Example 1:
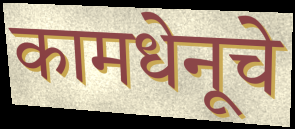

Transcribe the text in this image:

कामधेनूचे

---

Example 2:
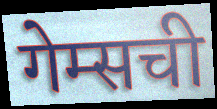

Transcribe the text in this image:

गेम्सची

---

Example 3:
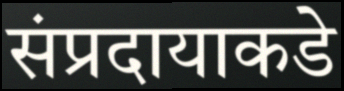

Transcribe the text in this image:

संप्रदायाकडे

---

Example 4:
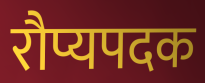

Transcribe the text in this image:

रौप्यपदक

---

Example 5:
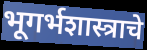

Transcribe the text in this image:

भूगर्भशास्त्राचे